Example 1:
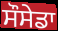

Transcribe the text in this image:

ਸੌਸੇਡਾ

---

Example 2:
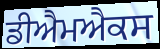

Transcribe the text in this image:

ਡੀਐਮਐਕਸ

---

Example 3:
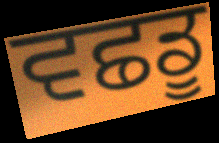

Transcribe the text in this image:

ਵਛਡੂ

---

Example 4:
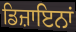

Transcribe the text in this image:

ਡਿਜ਼ਾਇਨਾਂ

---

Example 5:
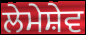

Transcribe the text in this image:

ਲੇਮੇਸ਼ੇਵ